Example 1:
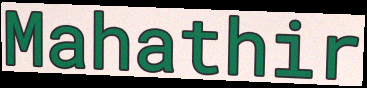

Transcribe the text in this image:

Mahathir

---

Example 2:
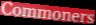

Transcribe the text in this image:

Commoners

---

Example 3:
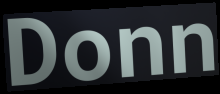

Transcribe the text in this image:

Donn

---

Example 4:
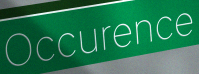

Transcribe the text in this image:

Occurence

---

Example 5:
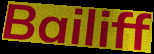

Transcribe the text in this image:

Bailiff